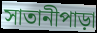
সাতানীপাড়া